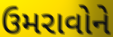
ઉમરાવોને